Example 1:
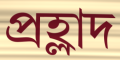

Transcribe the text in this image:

প্ৰহ্লাদ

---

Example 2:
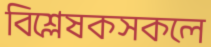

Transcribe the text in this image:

বিশ্লেষকসকলে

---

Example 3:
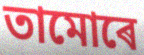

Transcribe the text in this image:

তামোৰে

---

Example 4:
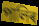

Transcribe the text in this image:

পালিৰ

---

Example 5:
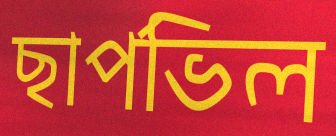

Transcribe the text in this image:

ছাৰ্পভিল